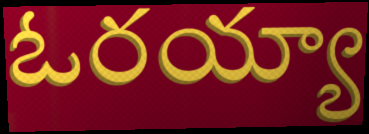
ఓరయ్యా